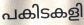
പകിടകളി